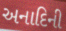
અનાદિની